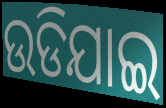
ଉଡିଯାଇ